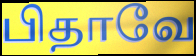
பிதாவே